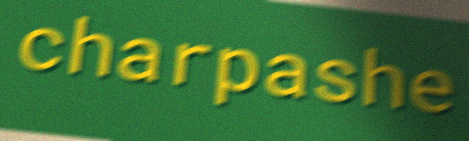
charpashe